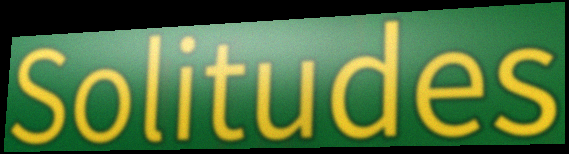
Solitudes